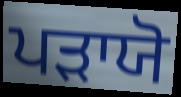
ਪੜਾਯੋ